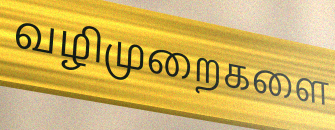
வழிமுறைகளை